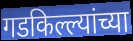
गडकिल्ल्यांच्या